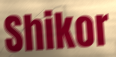
Shikor